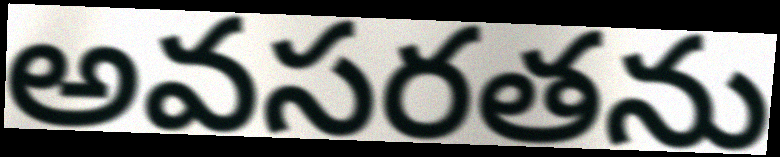
అవసరతను